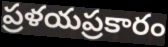
ప్రళయప్రకారం